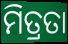
ମିତ୍ରତା